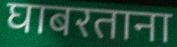
घाबरताना